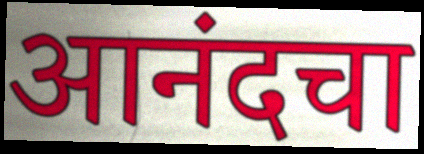
आनंदचा